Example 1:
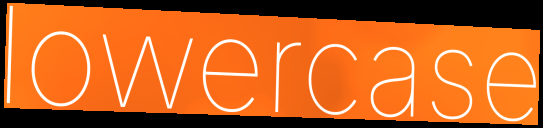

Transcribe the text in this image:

lowercase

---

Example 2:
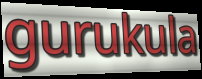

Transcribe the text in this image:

gurukula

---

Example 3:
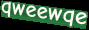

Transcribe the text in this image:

qweewqe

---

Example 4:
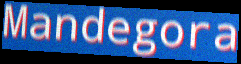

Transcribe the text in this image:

Mandegora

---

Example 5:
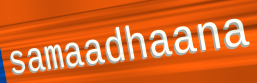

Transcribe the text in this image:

samaadhaana